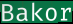
Bakor